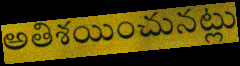
అతిశయించునట్లు